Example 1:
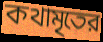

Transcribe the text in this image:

কথামৃতের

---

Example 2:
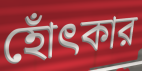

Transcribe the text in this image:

হোঁৎকার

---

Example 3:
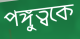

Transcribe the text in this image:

পঙ্গুত্বকে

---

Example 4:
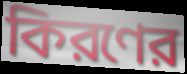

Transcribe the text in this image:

কিরণের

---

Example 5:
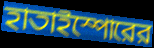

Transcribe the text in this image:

হাতাইস্পোরের